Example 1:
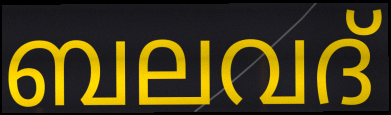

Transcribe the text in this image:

ബലവദ്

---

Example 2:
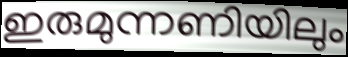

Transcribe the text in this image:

ഇരുമുന്നണിയിലും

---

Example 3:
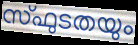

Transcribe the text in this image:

സ്ഫുടതയും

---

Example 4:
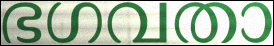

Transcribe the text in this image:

ഭഗവതാ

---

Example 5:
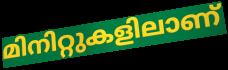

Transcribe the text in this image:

മിനിറ്റുകളിലാണ്